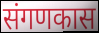
संगणकास